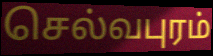
செல்வபுரம்